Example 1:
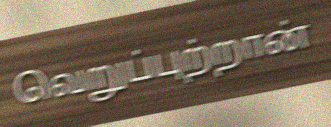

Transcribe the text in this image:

வெறுப்புற்றான்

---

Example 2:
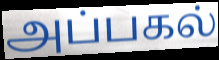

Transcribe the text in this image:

அப்பகல்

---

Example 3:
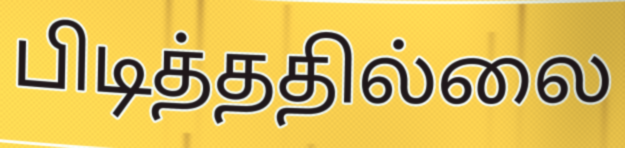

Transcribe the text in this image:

பிடித்ததில்லை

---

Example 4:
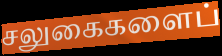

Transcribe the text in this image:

சலுகைகளைப்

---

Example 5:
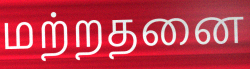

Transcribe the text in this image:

மற்றதனை